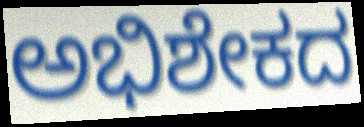
ಅಭಿಶೇಕದ